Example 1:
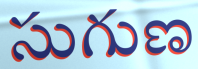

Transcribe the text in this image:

సుగుణ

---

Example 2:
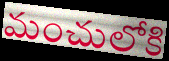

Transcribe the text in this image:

మంచులోకి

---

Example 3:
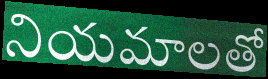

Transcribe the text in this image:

నియమాలతో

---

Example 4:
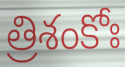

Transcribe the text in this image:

త్రిశంకోః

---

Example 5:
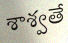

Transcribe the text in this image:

శాశ్వతే